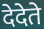
देदेते